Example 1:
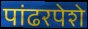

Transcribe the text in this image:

पांढरपेशे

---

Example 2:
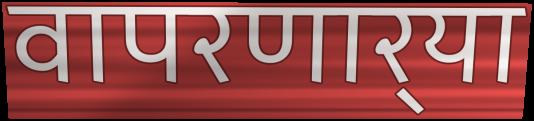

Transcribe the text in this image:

वापरणार्‍या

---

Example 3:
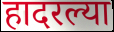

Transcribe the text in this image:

हादरल्या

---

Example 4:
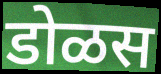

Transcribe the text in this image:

डोळस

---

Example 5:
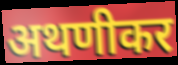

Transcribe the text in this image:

अथणीकर